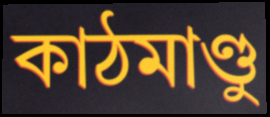
কাঠমাণ্ডু